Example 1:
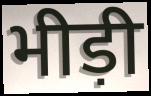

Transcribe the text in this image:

भीड़ी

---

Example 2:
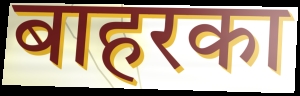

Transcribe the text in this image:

बाहरका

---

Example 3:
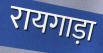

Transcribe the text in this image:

रायगाड़ा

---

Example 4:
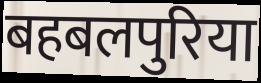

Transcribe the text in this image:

बहबलपुरिया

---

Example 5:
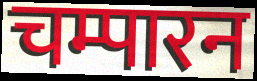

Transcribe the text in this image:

चम्पारन